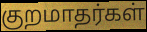
குறமாதர்கள்